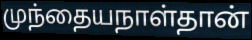
முந்தையநாள்தான்